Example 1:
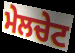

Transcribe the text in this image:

ਮੇਲਚੇਟ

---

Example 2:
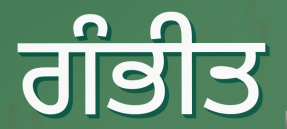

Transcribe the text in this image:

ਗੰਭੀਤ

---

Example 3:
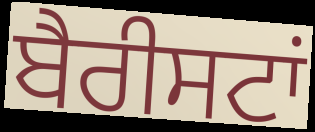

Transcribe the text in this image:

ਬੈਰੀਸਟਾਂ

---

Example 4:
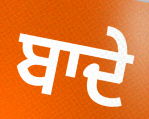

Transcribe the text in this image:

ਬਾਦੇ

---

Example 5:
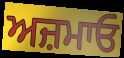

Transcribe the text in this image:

ਅਜ਼ਮਾਓ